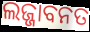
ଲଜ୍ଜାବନତ